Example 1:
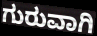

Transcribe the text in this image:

ಗುರುವಾಗಿ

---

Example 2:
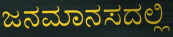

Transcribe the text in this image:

ಜನಮಾನಸದಲ್ಲಿ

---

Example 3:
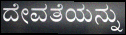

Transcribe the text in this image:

ದೇವತೆಯನ್ನು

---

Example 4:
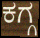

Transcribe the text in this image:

ಕಗ್ಗ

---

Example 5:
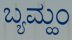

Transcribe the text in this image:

ಬ್ಯಮ್ಹಂ